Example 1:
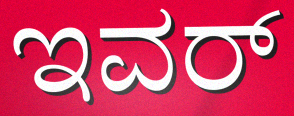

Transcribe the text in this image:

ಇವರ್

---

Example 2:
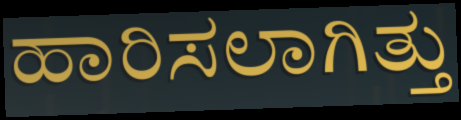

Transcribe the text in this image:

ಹಾರಿಸಲಾಗಿತ್ತು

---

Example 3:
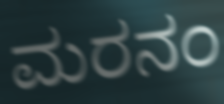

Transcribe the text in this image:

ಮರನಂ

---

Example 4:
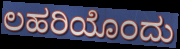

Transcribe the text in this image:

ಲಹರಿಯೊಂದು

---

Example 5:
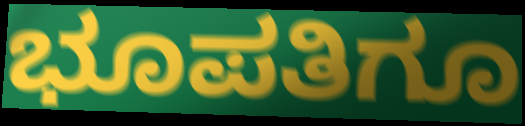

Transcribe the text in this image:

ಭೂಪತಿಗೂ